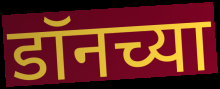
डॉनच्या